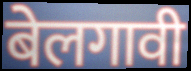
बेलगावी